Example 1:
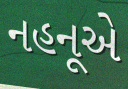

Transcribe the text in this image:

નહનૂએ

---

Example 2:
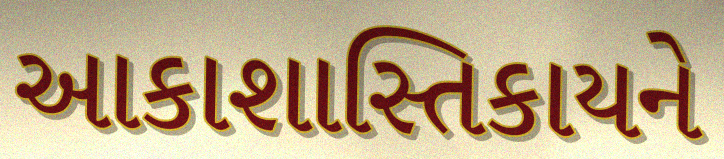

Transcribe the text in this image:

આકાશાસ્તિકાયને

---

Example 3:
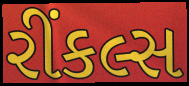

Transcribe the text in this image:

રીંકલ્સ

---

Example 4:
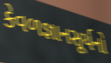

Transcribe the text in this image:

કેવળજ્ઞાનસૂર્યનો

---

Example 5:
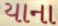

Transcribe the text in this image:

યાના